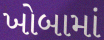
ખોબામાં